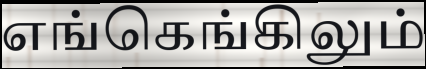
எங்கெங்கிலும்